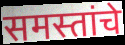
समस्तांचे